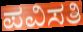
ಪವಿಸತಿ